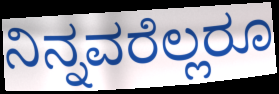
ನಿನ್ನವರೆಲ್ಲರೂ